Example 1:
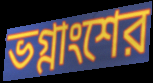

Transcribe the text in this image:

ভগ্নাংশের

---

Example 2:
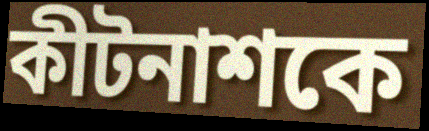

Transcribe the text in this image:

কীটনাশকে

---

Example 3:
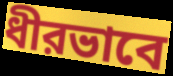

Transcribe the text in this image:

ধীরভাবে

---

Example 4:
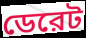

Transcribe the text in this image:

ডেরেট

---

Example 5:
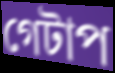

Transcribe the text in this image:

গেটাপ